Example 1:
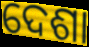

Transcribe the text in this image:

ଦେଶା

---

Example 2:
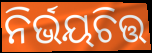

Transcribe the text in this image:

ନିର୍ଭୟଚିତ୍ତ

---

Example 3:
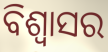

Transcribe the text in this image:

ବିଶ୍ବାସର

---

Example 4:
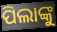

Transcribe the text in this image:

ପିଲାଙ୍କୁ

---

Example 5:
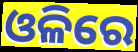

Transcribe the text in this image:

ଓଳିରେ